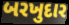
બરખુદાર